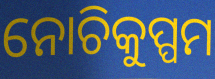
ନୋଚିକୁପ୍ପମ